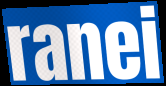
ranei